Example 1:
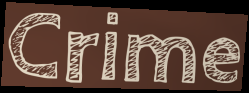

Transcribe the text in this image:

Crime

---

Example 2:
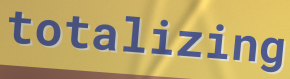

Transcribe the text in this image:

totalizing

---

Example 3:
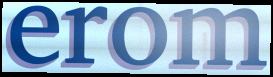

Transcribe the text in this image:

erom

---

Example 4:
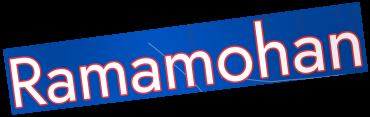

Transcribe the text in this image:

Ramamohan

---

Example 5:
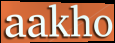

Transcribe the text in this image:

aakho